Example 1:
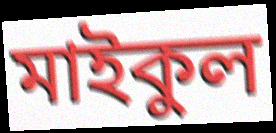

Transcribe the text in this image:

মাইকুল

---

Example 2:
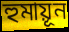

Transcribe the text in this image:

হুমায়ূন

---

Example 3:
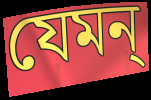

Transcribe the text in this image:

যেমন্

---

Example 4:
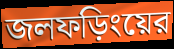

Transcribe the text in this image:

জলফড়িংয়ের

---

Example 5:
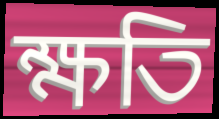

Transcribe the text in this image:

ক্ষতি